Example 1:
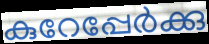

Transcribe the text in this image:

കുറേപ്പേർക്കു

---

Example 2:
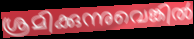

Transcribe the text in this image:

ശ്രമിക്കുന്നുവെങ്കിൽ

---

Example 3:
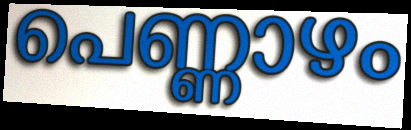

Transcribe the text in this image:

പെണ്ണാഴം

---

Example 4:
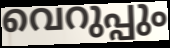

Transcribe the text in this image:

വെറുപ്പും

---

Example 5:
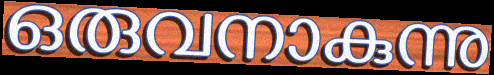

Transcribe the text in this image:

ഒരുവനാകുന്നു